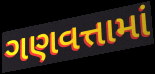
ગણવત્તામાં